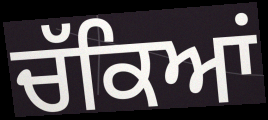
ਚੱਕਿਆਂ